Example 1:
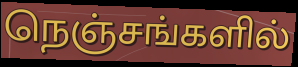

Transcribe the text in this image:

நெஞ்சங்களில்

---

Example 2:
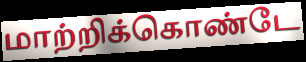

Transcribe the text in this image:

மாற்றிக்கொண்டே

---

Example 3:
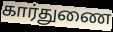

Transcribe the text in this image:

கார்துணை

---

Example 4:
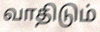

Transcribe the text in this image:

வாதிடும்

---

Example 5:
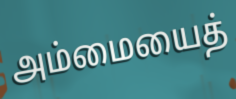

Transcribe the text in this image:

அம்மையைத்